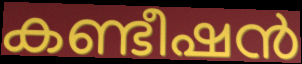
കണ്ടീഷൻ